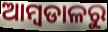
ଆମ୍ବଡାଳରୁ